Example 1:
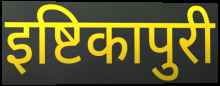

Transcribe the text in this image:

इष्टिकापुरी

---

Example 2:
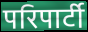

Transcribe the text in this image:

परिपार्टी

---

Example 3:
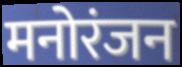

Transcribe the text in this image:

मनोरंजन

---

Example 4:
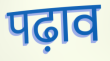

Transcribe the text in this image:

पढ़ाव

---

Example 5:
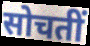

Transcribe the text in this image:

सोचतीं